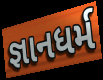
જ્ઞાનધર્મ